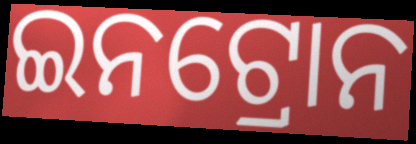
ଇନଟ୍ରୋନ